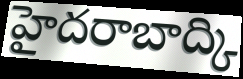
హైదరాబాద్కి